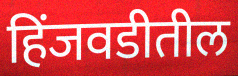
हिंजवडीतील